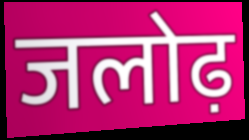
जलोढ़